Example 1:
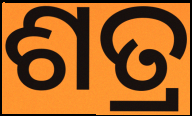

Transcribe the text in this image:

ଶତ୍ର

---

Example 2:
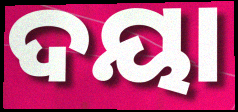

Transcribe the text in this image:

ଦୟା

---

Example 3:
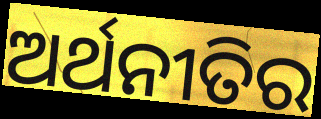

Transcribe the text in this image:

ଅର୍ଥନୀତିର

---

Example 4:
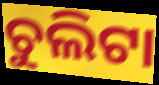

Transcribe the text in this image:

ଚୁଲିଟା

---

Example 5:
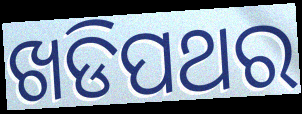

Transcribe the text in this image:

ଖଡିପଥର